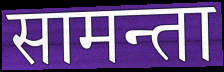
सामन्ता